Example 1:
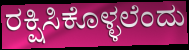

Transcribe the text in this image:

ರಕ್ಷಿಸಿಕೊಳ್ಳಲೆಂದು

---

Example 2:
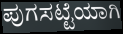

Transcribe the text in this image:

ಪುಗಸಟ್ಟೆಯಾಗಿ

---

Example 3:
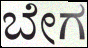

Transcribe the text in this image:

ಬೇಗ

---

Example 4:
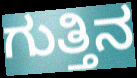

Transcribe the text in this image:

ಗುತ್ತಿನ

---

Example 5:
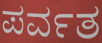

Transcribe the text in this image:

ಪರ್ವತ